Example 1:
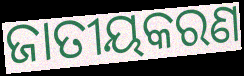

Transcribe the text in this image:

ଜାତୀୟକରଣ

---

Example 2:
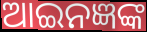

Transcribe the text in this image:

ଆଇନଜ୍ଞଙ୍କ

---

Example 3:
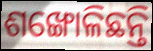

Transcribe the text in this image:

ଶଙ୍ଖୋଳିଛନ୍ତି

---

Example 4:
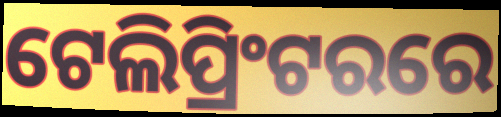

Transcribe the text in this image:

ଟେଲିପ୍ରିଂଟରରେ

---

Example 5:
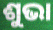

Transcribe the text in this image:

ଶୁଭା